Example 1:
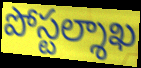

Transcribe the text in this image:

పోస్టల్శాఖ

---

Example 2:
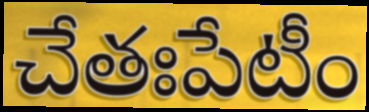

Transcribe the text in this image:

చేతఃపేటీం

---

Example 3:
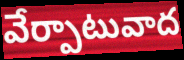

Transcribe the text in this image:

వేర్పాటువాద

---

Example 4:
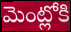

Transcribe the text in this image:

మెంట్లోకి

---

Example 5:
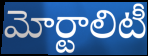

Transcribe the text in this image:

మోర్టాలిటీ